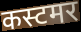
कस्टमर